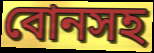
বোনসহ